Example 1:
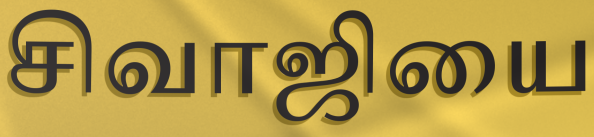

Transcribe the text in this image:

சிவாஜியை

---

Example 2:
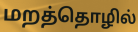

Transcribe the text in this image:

மறத்தொழில்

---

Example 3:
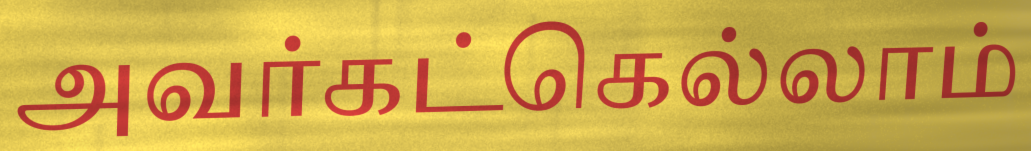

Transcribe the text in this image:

அவர்கட்கெல்லாம்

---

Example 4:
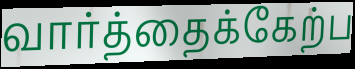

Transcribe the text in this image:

வார்த்தைக்கேற்ப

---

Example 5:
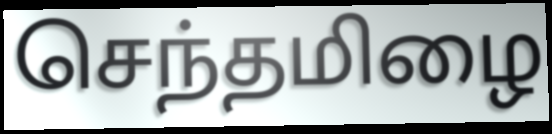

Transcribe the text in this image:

செந்தமிழை